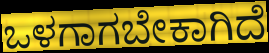
ಒಳಗಾಗಬೇಕಾಗಿದೆ